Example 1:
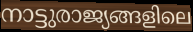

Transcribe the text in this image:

നാട്ടുരാജ്യങ്ങളിലെ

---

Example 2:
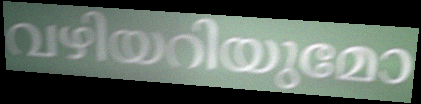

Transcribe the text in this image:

വഴിയറിയുമോ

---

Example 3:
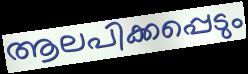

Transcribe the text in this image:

ആലപിക്കപ്പെടും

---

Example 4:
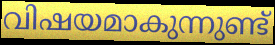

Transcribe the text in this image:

വിഷയമാകുന്നുണ്ട്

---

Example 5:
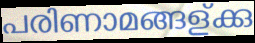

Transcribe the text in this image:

പരിണാമങ്ങള്ക്കു